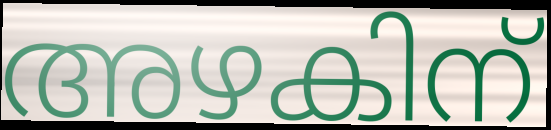
അഴകിന്